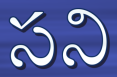
సని